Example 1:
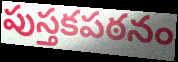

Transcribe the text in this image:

పుస్తకపఠనం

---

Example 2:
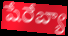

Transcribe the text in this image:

షేరేబ్యా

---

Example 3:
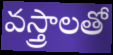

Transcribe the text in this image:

వస్త్రాలతో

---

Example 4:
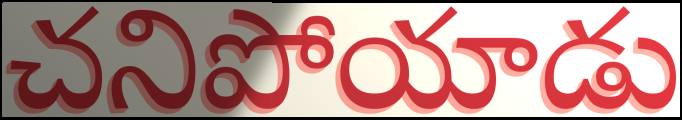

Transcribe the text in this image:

చనిపోయాడు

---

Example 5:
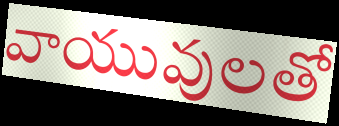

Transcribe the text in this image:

వాయువులతో